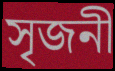
সৃজনী